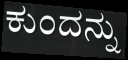
ಕುಂದನ್ನು